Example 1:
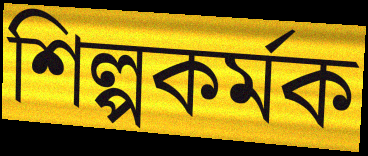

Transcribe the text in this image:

শিল্পকৰ্মক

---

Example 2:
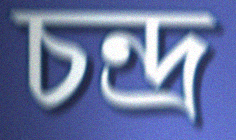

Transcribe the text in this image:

চন্দ্ৰ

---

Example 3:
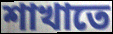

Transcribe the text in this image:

শাখাতে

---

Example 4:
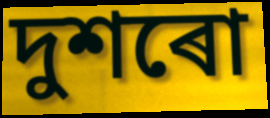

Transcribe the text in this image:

দুশৰো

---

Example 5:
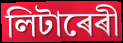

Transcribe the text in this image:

লিটাৰেৰী